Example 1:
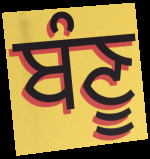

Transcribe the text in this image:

ਬੰਣੂ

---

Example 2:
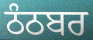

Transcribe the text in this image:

ਠੰਠਬਰ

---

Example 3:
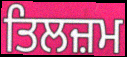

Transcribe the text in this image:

ਤਿਲਜ਼ਮ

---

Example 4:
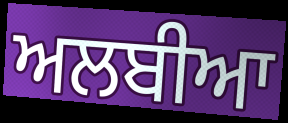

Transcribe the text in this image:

ਅਲਬੀਆ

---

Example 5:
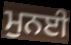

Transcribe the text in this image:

ਮੁਨਈ